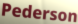
Pederson